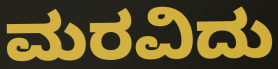
ಮರವಿದು